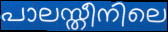
പാലസ്തീനിലെ